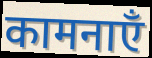
कामनाएँ